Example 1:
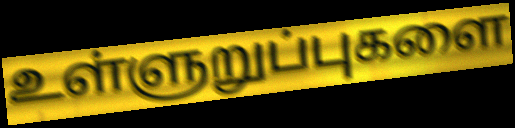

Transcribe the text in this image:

உள்ளுறுப்புகளை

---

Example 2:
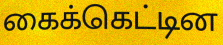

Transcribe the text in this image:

கைக்கெட்டின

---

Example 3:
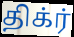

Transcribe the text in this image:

திக்ர்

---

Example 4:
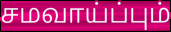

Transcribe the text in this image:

சமவாய்ப்பும்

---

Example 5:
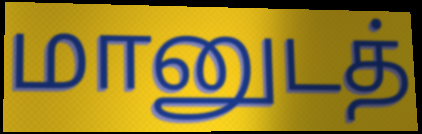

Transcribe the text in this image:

மானுடத்